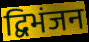
द्विभंजन